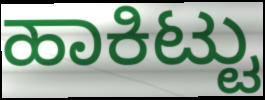
ಹಾಕಿಟ್ಟು